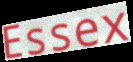
Essex